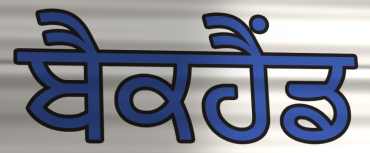
ਬੈਕਹੈਂਡ